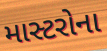
માસ્ટરોના